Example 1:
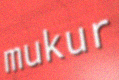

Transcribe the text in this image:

mukur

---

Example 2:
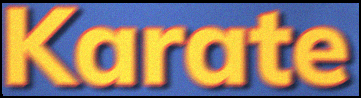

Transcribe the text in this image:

Karate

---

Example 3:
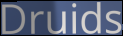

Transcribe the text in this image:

Druids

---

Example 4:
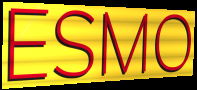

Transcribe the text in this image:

ESMO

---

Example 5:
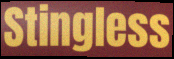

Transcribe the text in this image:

Stingless